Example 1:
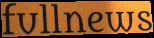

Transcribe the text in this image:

fullnews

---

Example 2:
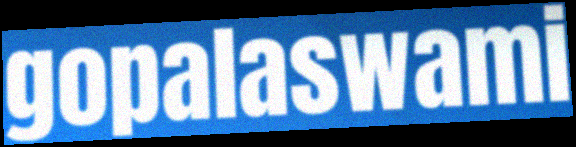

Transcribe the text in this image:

gopalaswami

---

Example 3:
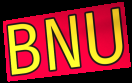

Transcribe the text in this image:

BNU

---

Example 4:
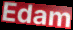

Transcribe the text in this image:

Edam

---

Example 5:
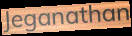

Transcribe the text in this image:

Jeganathan